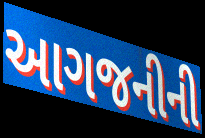
આગજનીની